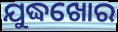
ଯୁଦ୍ଧଖୋର